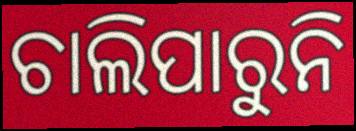
ଚାଲିପାରୁନି